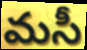
మసీ